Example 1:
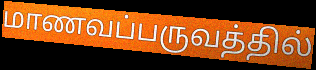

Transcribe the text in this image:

மாணவப்பருவத்தில்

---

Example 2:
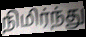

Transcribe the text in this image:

நிமிர்ந்து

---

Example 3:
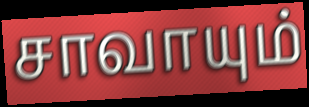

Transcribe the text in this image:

சாவாயும்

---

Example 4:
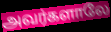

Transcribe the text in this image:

அவர்களாலே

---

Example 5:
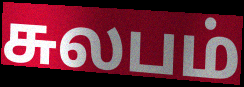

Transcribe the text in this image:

சுலபம்